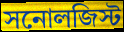
সনোলজিস্ট